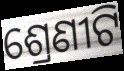
ଶ୍ରେଣୀଟି